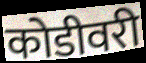
कोडीवरी